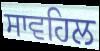
ਸਾਵਹਿਲ